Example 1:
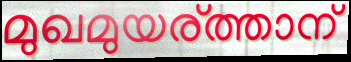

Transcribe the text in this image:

മുഖമുയര്ത്താന്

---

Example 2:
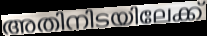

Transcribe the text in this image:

അതിനിടയിലേക്ക്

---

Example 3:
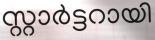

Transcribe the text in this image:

സ്റ്റാർട്ടറായി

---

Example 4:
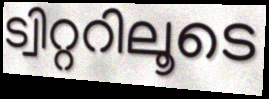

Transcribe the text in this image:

ട്വിറ്ററിലൂടെ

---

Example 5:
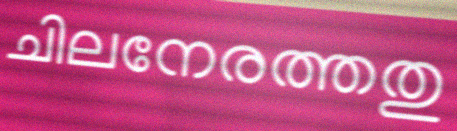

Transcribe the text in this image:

ചിലനേരത്തതു